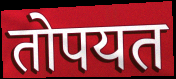
तोपयत